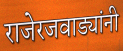
राजेरजवाड्यांनी